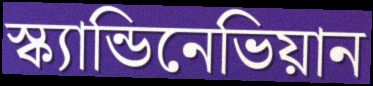
স্ক্যান্ডিনেভিয়ান